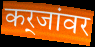
कर्जांवर